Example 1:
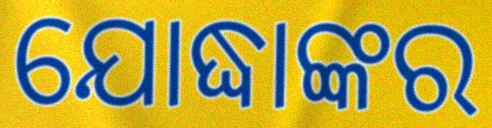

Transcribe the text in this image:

ଯୋଦ୍ଧାଙ୍କର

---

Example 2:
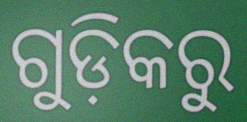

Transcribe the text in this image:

ଗୁଡ଼ିକରୁ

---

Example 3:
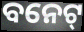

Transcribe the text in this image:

ବନେଟ୍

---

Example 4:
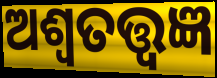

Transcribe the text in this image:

ଅଶ୍ୱତତ୍ତ୍ୱଜ୍ଞ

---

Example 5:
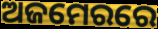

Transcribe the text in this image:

ଅଜମେରରେ